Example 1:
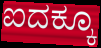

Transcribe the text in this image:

ಐದಕ್ಕೂ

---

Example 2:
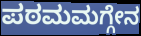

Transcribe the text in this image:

ಪಠಮಮಗ್ಗೇನ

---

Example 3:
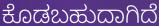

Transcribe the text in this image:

ಕೊಡಬಹುದಾಗಿದೆ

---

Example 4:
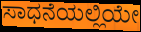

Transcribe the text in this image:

ಸಾಧನೆಯಲ್ಲಿಯೇ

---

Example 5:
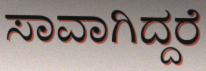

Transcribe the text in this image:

ಸಾವಾಗಿದ್ದರೆ